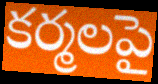
కర్మలపై